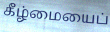
கீழ்மையைப்